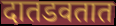
दातडवतात